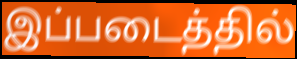
இப்படைத்தில்